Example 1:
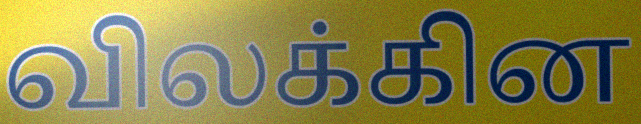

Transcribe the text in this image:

விலக்கின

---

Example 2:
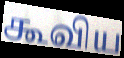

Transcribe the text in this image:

கூவிய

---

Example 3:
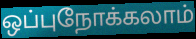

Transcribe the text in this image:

ஒப்புநோக்கலாம்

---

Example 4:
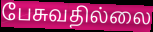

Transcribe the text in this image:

பேசுவதில்லை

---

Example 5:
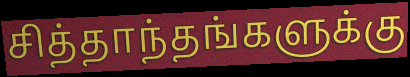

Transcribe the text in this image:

சித்தாந்தங்களுக்கு